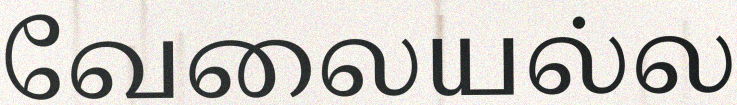
வேலையல்ல